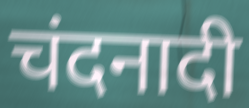
चंदनादी